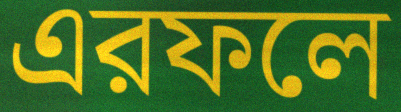
এরফলে